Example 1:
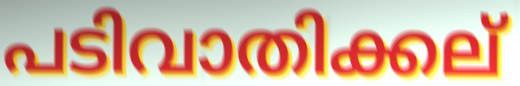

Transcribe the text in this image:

പടിവാതിക്കല്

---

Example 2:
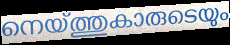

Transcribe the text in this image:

നെയ്ത്തുകാരുടെയും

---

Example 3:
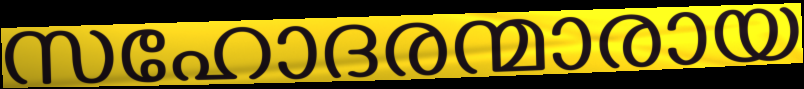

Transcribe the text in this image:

സഹോദരന്മാരായ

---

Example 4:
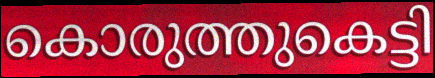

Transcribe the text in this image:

കൊരുത്തുകെട്ടി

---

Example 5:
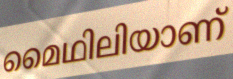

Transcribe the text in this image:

മൈഥിലിയാണ്